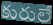
కురులే